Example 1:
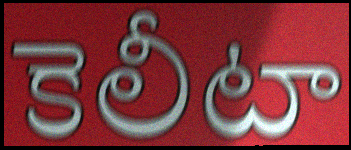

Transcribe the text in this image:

కెలీటా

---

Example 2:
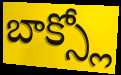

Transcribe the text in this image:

బాక్స్లో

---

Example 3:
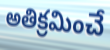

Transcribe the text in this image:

అతిక్రమించే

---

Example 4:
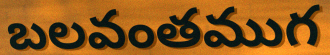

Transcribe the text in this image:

బలవంతముగ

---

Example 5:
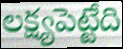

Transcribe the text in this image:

లక్ష్యపెట్టేది